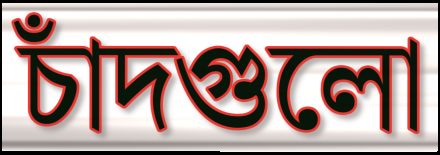
চাঁদগুলো